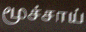
மூச்சாய்